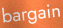
bargain